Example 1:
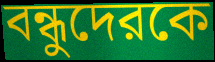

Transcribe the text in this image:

বন্ধুদেরকে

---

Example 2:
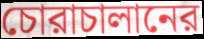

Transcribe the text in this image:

চোরাচালানের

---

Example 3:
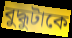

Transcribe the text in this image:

বুদ্ধুটাকে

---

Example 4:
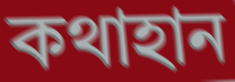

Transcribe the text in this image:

কথাহান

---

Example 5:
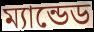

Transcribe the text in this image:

ম্যান্ডেড